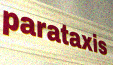
parataxis